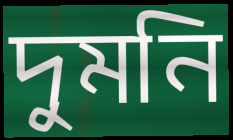
দুমনি